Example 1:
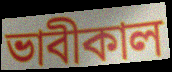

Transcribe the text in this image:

ভাবীকাল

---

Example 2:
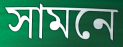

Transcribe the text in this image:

সামনে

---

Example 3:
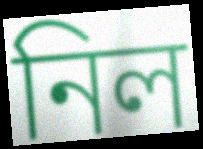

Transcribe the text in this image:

নিল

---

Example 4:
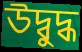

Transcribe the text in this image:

উদ্বুদ্ধ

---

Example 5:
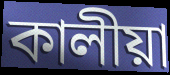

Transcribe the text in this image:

কালীয়া